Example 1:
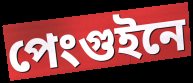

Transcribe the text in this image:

পেংগুইনে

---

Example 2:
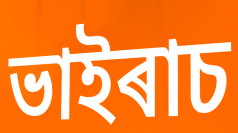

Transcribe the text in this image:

ভাইৰাচ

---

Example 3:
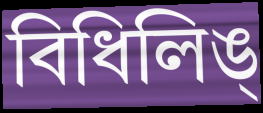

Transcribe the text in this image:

বিধিলিঙ্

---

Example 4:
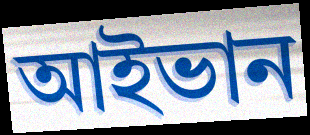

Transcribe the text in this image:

আইভান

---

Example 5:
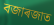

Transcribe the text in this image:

বজাৰজাত